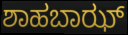
ಶಾಹಬಾಝ್